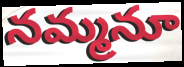
నమ్మనూ